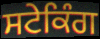
ਸਟੇਕਿੰਗ